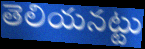
తెలియనట్టు